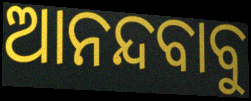
ଆନନ୍ଦବାବୁ